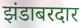
झंडाबरदार